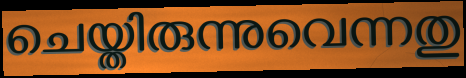
ചെയ്തിരുന്നുവെന്നതു